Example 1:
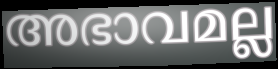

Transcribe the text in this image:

അഭാവമല്ല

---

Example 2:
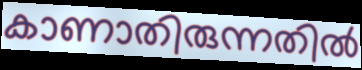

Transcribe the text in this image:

കാണാതിരുന്നതിൽ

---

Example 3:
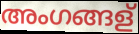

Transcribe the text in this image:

അംഗങ്ങള്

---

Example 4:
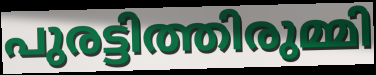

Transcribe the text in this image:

പുരട്ടിത്തിരുമ്മി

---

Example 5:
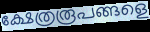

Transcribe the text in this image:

ക്ഷേത്രരൂപങ്ങളെ